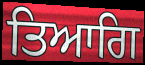
ਤਿਆਗਿ